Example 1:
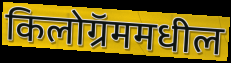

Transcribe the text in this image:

किलोग्रॅममधील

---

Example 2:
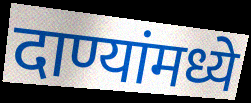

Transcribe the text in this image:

दाण्यांमध्ये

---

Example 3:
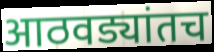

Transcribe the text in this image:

आठवड्यांतच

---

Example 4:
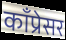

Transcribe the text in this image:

काँप्रेसर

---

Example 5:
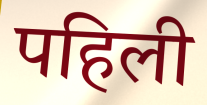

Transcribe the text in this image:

पहिली